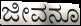
ಜೀವನೂ